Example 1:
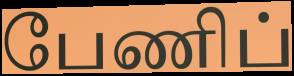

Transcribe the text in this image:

பேணிப்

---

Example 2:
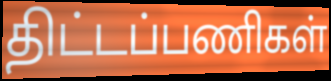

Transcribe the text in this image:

திட்டப்பணிகள்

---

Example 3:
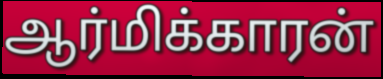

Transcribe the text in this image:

ஆர்மிக்காரன்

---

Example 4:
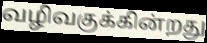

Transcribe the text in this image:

வழிவகுக்கின்றது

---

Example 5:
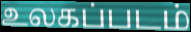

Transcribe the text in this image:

உலகப்படம்